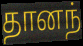
தானந்